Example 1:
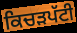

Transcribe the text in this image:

ਕਿਚੜਪੱਟੀ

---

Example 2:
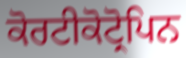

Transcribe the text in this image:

ਕੋਰਟੀਕੋਟ੍ਰੋਪਿਨ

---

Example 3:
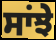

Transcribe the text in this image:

ਸਾਂਝੇ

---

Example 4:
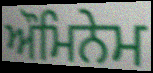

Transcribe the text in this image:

ਔਮਿਨੇਮ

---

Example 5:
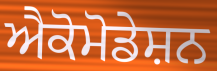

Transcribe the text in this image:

ਐਕੋਮੋਡੇਸ਼ਨ